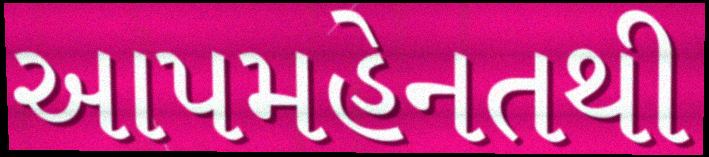
આપમહેનતથી